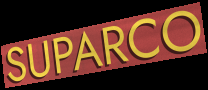
SUPARCO